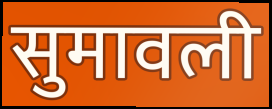
सुमावली